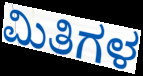
ಮಿತಿಗಳ